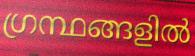
ഗ്രന്ഥങ്ങളിൽ